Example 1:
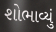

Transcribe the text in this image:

શોભાવ્યું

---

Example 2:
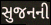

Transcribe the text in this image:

સુજનની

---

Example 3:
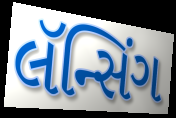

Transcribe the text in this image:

લૅન્સિંગ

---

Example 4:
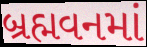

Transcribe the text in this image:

બ્રહ્મવનમાં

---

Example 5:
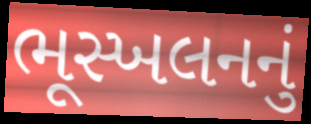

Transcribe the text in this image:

ભૂસ્ખલનનું